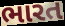
ભારત